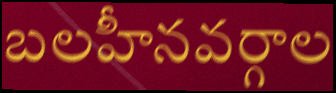
బలహీనవర్గాల